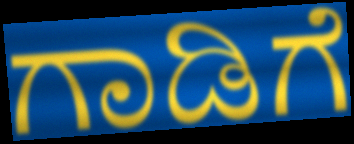
ಗಾಡಿಗೆ